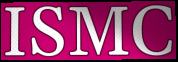
ISMC